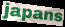
japans